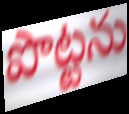
పొట్టను